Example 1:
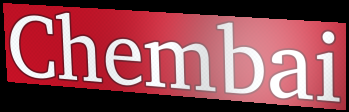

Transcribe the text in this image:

Chembai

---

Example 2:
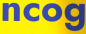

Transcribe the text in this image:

ncog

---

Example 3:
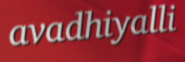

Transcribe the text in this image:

avadhiyalli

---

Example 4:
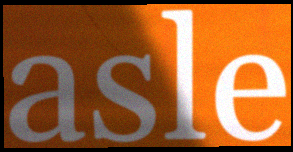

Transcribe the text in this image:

asle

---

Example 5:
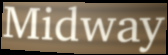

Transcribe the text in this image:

Midway